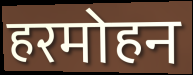
हरमोहन